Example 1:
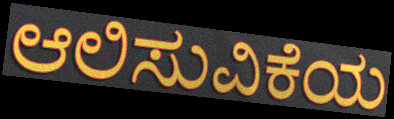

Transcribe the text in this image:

ಆಲಿಸುವಿಕೆಯ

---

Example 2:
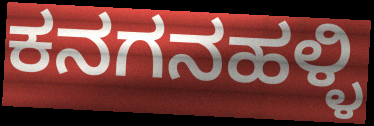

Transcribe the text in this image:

ಕನಗನಹಳ್ಳಿ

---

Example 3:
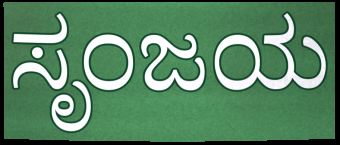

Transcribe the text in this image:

ಸೃಂಜಯ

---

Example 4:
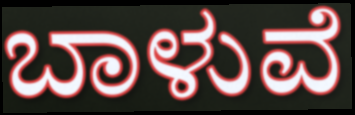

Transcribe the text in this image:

ಬಾಳುವೆ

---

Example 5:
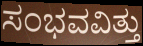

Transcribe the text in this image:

ಸಂಭವವಿತ್ತು